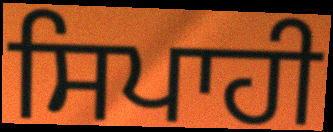
ਸਿਪਾਹੀ